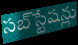
సబ్‌స్టేషన్లు